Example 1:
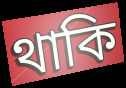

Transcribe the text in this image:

থাকি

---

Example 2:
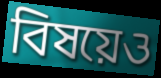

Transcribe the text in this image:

বিষয়েও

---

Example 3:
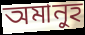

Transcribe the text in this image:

অমানুহ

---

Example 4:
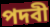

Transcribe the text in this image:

পদবী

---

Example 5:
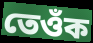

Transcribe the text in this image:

তেওঁক